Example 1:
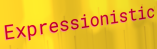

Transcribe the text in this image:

Expressionistic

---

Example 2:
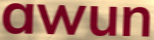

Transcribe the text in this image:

awun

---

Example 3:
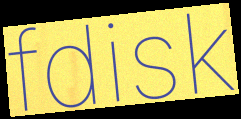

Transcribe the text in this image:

fdisk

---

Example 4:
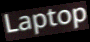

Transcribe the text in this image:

Laptop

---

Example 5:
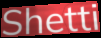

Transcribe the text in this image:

Shetti